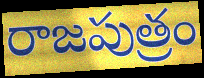
రాజపుత్రం